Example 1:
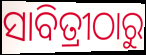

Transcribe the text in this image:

ସାବିତ୍ରୀଠାରୁ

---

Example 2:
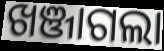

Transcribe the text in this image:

ଖଞ୍ଜାଗଲା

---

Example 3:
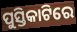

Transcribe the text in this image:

ପୁସ୍ତିକାଟିରେ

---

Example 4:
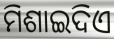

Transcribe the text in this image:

ମିଶାଇଦିଏ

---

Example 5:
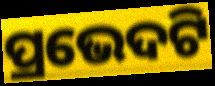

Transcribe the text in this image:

ପ୍ରଭେଦଟି